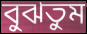
বুঝতুম